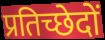
प्रतिच्छेदों